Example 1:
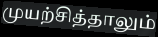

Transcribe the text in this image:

முயற்சித்தாலும்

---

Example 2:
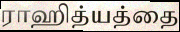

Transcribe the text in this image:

ராஹித்யத்தை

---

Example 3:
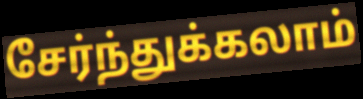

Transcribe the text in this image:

சேர்ந்துக்கலாம்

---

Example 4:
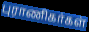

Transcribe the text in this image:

புராணிகர்கள்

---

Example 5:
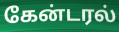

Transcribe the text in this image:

கேன்டரல்